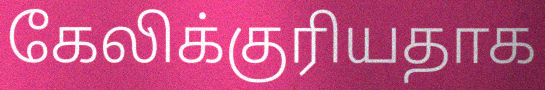
கேலிக்குரியதாக